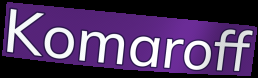
Komaroff